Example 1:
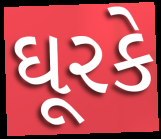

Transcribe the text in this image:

ઘૂરકે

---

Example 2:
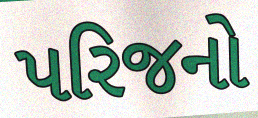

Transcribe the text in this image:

પરિજનો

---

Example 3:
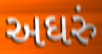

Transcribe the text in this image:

અઘરું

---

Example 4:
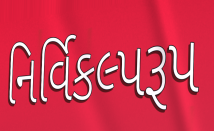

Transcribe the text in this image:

નિર્વિકલ્પરૂપ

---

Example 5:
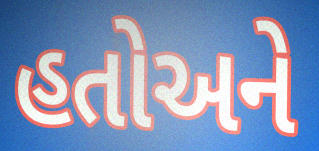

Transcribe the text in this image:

હતોઅને